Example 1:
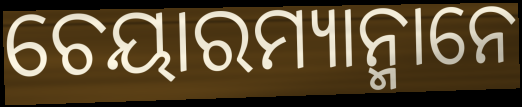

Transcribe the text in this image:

ଚେୟାରମ୍ୟାନ୍ମାନେ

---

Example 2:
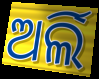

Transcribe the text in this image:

ଅର୍ଲି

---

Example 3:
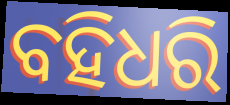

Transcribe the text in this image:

ବହିଧରି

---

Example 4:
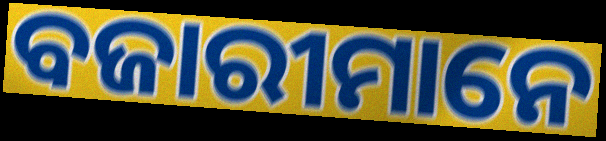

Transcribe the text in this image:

ବଜାରୀମାନେ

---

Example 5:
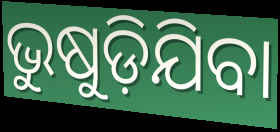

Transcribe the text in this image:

ଭୁଷୁଡ଼ିଯିବା